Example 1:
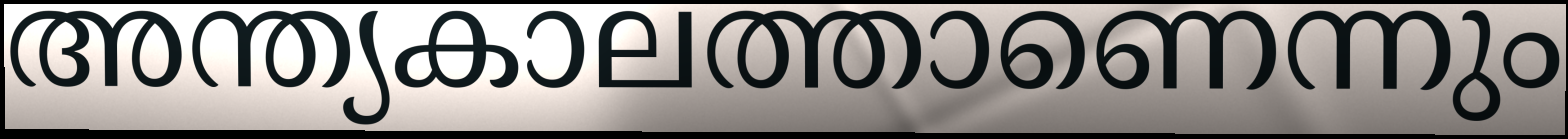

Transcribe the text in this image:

അന്ത്യകാലത്താണെന്നും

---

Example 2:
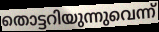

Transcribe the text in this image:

തൊട്ടറിയുന്നുവെന്ന്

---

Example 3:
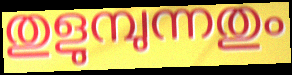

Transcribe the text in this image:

തുളുമ്പുന്നതും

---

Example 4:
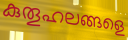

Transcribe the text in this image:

കുതൂഹലങ്ങളെ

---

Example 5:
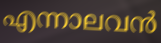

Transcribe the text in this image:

എന്നാലവൻ